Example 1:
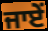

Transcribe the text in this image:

ਜਾਏਂ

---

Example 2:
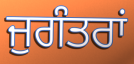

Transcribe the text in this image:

ਜੁਗੰਤਰਾਂ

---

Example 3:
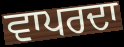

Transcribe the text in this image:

ਵਾਪਰਦਾ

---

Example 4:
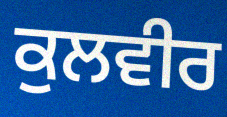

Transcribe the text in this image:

ਕੁਲਵੀਰ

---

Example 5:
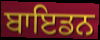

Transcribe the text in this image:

ਬਾਇਡਨ